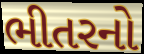
ભીતરનો